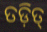
ତଡ଼ିତ୍